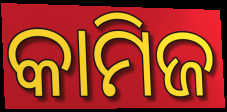
କାମିଜ